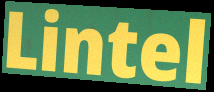
Lintel